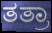
ತತ್ರಾ